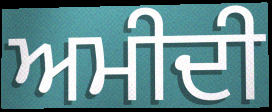
ਅਮੀਦੀ